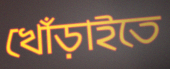
খোঁড়াইতে